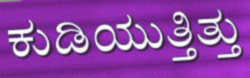
ಕುಡಿಯುತ್ತಿತ್ತು